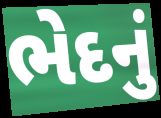
ભેદનું